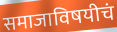
समाजाविषयीचं